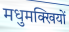
मधुमक्खियों